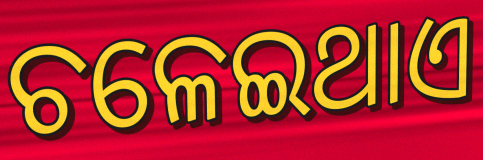
ଚଳେଇଥାଏ